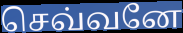
செவ்வனே